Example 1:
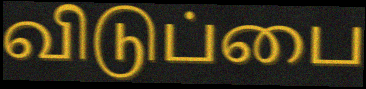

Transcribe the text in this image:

விடுப்பை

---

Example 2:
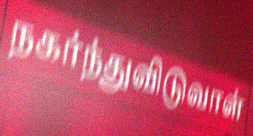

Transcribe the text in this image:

நகர்ந்துவிடுவாள்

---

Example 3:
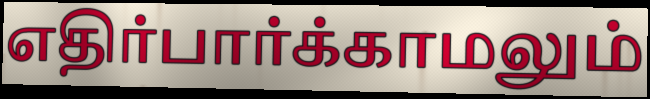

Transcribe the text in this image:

எதிர்பார்க்காமலும்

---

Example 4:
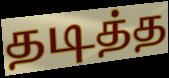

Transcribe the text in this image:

தடித்த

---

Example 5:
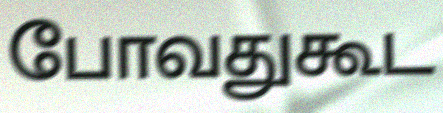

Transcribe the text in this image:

போவதுகூட